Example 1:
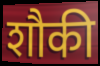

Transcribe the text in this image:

शौकी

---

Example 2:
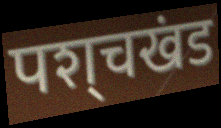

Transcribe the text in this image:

पश्चखंड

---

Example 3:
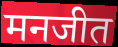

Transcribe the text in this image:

मनजीत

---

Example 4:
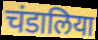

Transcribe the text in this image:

चंडालिया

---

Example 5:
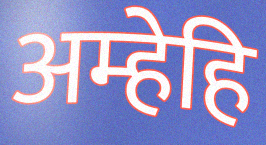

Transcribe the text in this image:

अम्हेहि